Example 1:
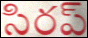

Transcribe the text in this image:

సిరప్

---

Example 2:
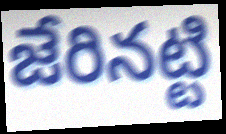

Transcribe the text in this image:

జేరినట్టి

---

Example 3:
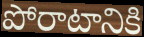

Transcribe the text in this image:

పోరాటానికి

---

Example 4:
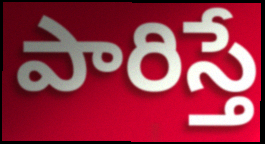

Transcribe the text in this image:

పారిస్తే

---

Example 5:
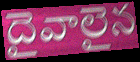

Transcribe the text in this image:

దైవాలైన